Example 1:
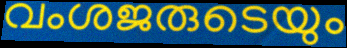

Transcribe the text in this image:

വംശജരുടെയും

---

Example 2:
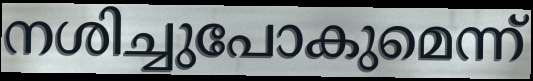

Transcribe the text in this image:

നശിച്ചുപോകുമെന്ന്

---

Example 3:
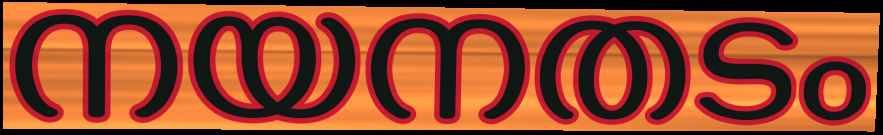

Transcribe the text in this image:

നയനതടം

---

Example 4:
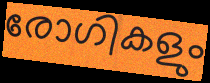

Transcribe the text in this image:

രോഗികളും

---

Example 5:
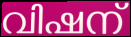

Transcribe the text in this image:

വിഷന്